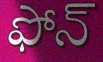
ఫోన్